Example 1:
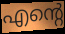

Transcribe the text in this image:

എന്റെ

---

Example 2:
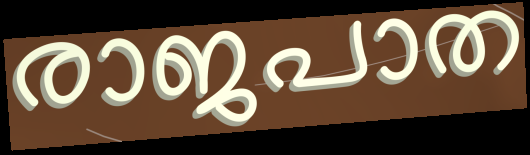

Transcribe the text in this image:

രാജപാത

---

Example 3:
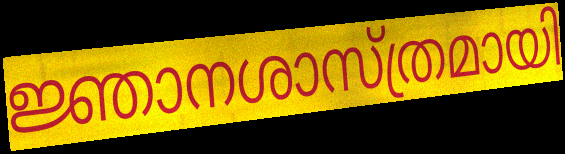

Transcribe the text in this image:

ജ്ഞാനശാസ്ത്രമായി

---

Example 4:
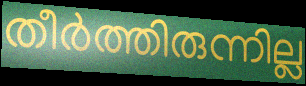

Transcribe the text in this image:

തീർത്തിരുന്നില്ല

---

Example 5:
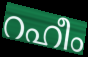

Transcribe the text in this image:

റഹീം